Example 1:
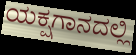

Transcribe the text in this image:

ಯಕ್ಷಗಾನದಲ್ಲಿ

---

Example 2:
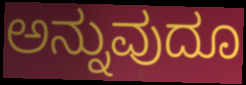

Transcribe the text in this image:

ಅನ್ನುವುದೂ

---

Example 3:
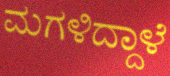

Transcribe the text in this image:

ಮಗಳಿದ್ದಾಳೆ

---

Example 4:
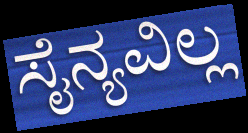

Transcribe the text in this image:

ಸೈನ್ಯವಿಲ್ಲ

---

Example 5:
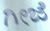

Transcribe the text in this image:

ಗೀಜೆ